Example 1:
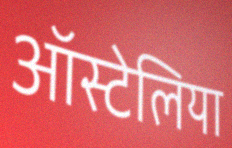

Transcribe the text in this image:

ऑस्टेलिया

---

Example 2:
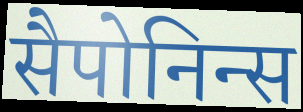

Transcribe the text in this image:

सैपोनिन्स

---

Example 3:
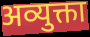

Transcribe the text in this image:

अव्युक्ता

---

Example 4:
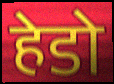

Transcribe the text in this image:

हेडो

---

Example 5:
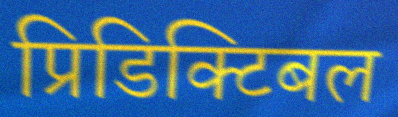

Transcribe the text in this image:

प्रिडिक्टिबल